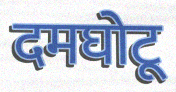
दमघोटू